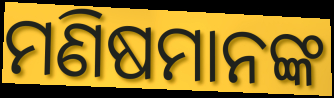
ମଣିଷମାନଙ୍କ